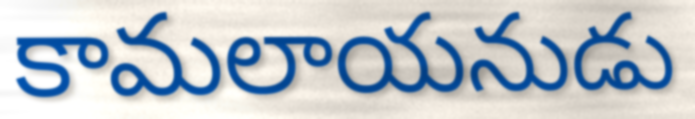
కామలాయనుడు